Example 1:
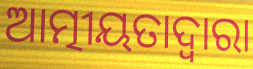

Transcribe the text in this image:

ଆତ୍ମୀୟତାଦ୍ଵାରା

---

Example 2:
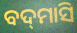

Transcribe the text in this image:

ବଦ୍‌ମାସି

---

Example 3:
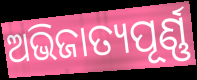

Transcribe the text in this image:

ଅଭିଜାତ୍ୟପୂର୍ଣ୍ଣ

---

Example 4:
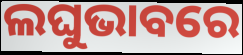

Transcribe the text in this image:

ଲଘୁଭାବରେ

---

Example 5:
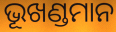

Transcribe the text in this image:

ଭୂଖଣ୍ଡମାନ